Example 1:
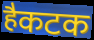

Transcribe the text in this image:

हैकटक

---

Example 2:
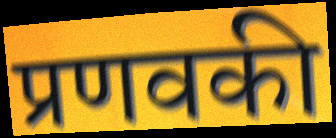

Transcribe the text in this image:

प्रणवकी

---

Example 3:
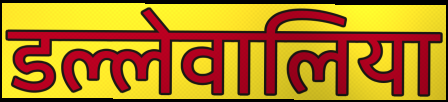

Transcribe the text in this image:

डल्लेवालिया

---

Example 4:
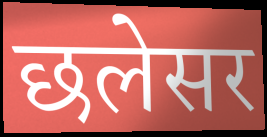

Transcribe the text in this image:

छलेसर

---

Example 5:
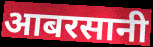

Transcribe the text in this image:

आबरसानी